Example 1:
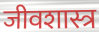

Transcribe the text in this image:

जीवशास्त्र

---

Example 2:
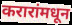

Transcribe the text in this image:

करारांमधून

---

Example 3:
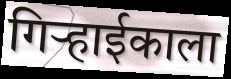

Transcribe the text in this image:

गिऱ्हाईकाला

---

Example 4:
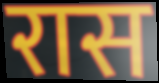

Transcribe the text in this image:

रास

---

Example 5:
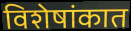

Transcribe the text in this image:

विशेषांकात